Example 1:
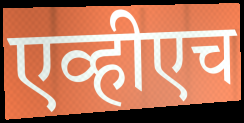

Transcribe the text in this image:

एव्हीएच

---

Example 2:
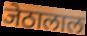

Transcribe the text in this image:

जेठालाल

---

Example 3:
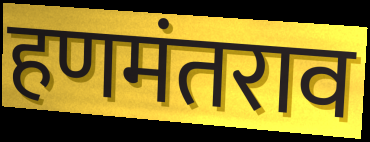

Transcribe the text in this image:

हणमंतराव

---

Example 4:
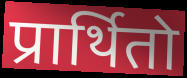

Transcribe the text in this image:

प्रार्थितो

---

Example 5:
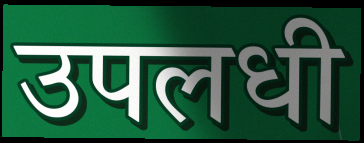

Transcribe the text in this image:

उपलधी